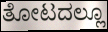
ತೋಟದಲ್ಲೂ